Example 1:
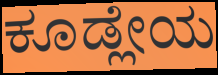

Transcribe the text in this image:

ಕೂಡ್ಲೇಯ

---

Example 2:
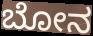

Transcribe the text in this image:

ಬೋನ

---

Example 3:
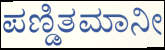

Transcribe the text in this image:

ಪಣ್ಡಿತಮಾನೀ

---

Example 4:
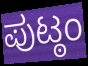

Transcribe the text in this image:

ಪುಟ್ಠಂ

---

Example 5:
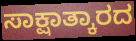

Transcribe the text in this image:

ಸಾಕ್ಷಾತ್ಕಾರದ